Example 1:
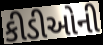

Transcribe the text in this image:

કીડીઓની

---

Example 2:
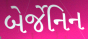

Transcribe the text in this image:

બેર્જેનિન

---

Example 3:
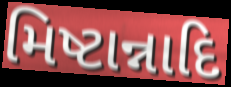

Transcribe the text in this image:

મિષ્ટાન્નાદિ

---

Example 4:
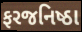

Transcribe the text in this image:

ફરજનિષ્ઠા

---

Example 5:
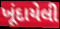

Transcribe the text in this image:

ખૂંદાયેલી